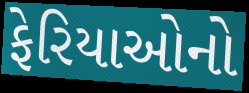
ફેરિયાઓનો